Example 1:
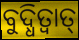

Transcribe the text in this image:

ବୁଦ୍ଧିତ୍ୱାତ୍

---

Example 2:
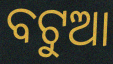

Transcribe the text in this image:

ବଟୁଆ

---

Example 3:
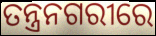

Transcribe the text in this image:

ତନ୍ତ୍ରନଗରୀରେ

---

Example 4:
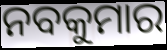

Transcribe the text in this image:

ନବକୁମାର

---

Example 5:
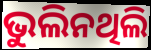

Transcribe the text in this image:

ଭୁଲିନଥିଲି